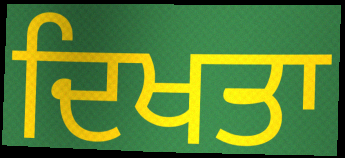
ਦਿਖਤਾ